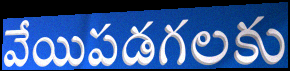
వేయిపడగలకు